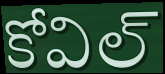
కోవిల్